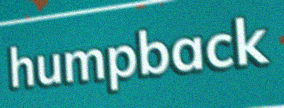
humpback